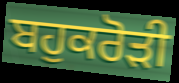
ਬਹੁਕਰੋੜੀ